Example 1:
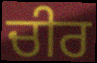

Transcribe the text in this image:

ਚੀਰ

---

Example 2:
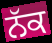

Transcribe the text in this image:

ਨੱਕ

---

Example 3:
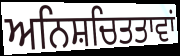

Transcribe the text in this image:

ਅਨਿਸ਼ਚਿਤਤਾਵਾਂ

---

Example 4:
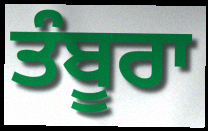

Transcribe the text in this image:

ਤੰਬੂਰਾ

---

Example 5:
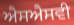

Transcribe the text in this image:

ਐਸਐਸਵੀ